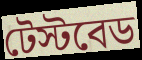
টেস্টবেড